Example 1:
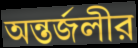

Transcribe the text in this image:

অন্তর্জলীর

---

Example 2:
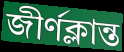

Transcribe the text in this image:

জীর্ণক্লান্ত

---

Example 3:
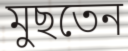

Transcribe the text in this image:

মুছতেন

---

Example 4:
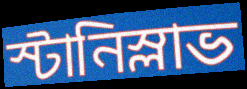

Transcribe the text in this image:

স্টানিস্লাভ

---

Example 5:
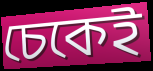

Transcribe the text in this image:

চেকেই